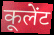
कूलेंट